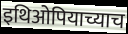
इथिओपियाच्याच